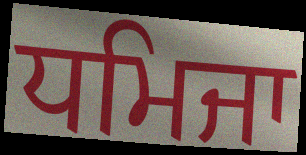
ਧਮਿਜਾ